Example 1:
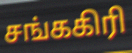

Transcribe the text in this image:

சங்ககிரி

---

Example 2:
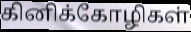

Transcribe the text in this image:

கினிக்கோழிகள்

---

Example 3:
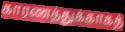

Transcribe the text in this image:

காரணத்துக்காகத்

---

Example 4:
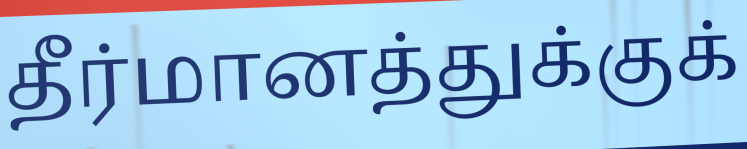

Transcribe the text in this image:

தீர்மானத்துக்குக்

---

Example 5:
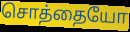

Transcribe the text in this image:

சொத்தையோ